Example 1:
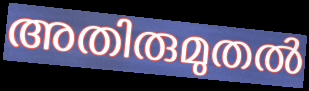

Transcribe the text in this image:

അതിരുമുതൽ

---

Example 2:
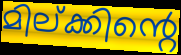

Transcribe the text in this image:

മില്ക്കിന്റെ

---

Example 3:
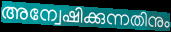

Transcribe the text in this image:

അന്വേഷിക്കുന്നതിനും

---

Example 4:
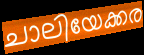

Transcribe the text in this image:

ചാലിയേക്കര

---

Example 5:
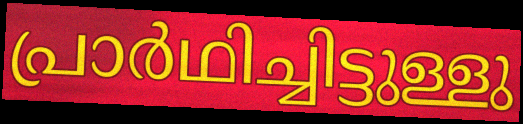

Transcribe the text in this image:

പ്രാർഥിച്ചിട്ടുള്ളു